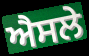
ਐਸਲੇ